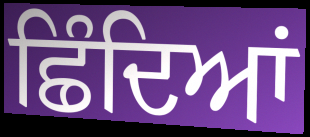
ਛਿੰਦਿਆਂ